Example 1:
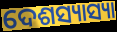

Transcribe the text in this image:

ଦେଶସ୍ୟାସ୍ୟା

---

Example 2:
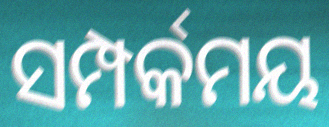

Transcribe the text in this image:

ସମ୍ପର୍କମୟ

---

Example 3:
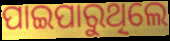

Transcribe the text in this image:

ପାଇପାରୁଥିଲେ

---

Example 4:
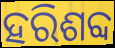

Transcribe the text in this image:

ହରିଶବ୍ଦ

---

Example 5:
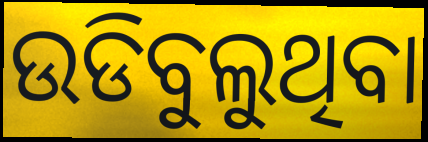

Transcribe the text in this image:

ଉଡିବୁଲୁଥିବା